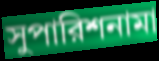
সুপারিশনামা